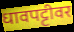
धावपट्टीवर